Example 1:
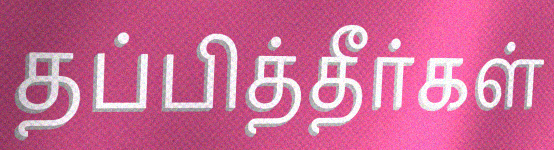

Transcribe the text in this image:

தப்பித்தீர்கள்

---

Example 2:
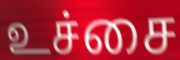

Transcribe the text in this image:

உச்சை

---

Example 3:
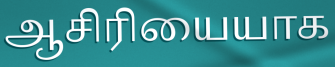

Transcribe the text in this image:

ஆசிரியையாக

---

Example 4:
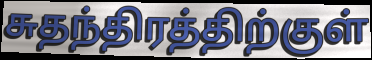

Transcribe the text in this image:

சுதந்திரத்திற்குள்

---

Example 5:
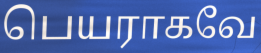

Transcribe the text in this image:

பெயராகவே